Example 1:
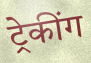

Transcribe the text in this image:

ट्रेकींग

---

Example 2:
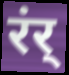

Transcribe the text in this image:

रंर्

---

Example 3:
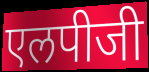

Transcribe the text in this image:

एलपीजी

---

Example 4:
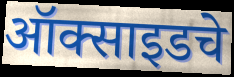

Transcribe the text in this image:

ऑक्साइडचे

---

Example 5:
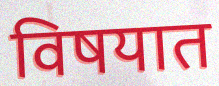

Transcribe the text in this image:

विषयात